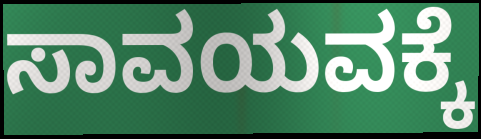
ಸಾವಯವಕ್ಕೆ